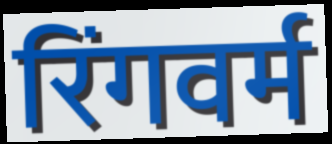
रिंगवर्म